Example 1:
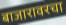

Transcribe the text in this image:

बाजारावरचा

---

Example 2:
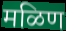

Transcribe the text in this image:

मळिण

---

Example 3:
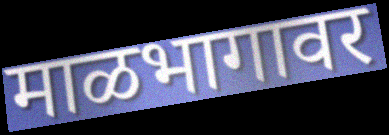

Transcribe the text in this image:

माळभागावर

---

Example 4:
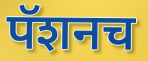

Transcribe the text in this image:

पॅशनच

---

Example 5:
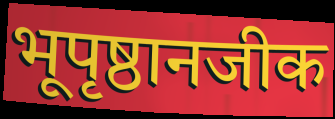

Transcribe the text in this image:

भूपृष्ठानजीक